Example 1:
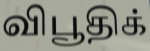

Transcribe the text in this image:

விபூதிக்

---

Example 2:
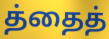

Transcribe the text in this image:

த்தைத்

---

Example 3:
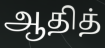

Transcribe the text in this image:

ஆதித்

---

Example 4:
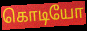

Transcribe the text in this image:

கொடியோ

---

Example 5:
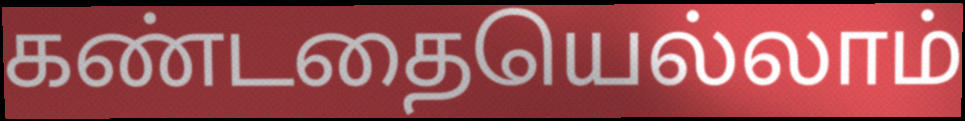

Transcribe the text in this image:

கண்டதையெல்லாம்